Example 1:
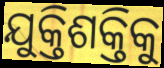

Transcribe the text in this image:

ଯୁକ୍ତିଶକ୍ତିକୁ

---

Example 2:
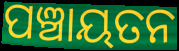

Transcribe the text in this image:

ପଞ୍ଚାୟତନ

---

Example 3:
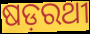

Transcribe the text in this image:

ଷଡ଼ରଥୀ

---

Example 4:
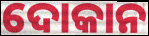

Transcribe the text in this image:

ଦୋକାନ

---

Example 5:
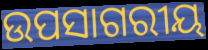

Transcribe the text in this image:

ଉପସାଗରୀୟ